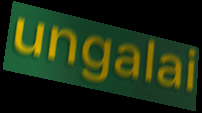
ungalai